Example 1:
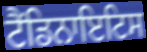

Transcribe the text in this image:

ਟੈਂਡਿਨਾਇਟਿਸ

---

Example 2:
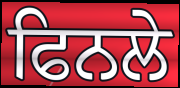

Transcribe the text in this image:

ਫਿਨਲੇ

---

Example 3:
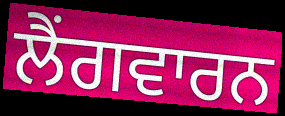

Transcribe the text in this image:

ਲੈਂਗਵਾਰਨ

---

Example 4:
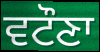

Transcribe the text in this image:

ਵਟੌਣਾ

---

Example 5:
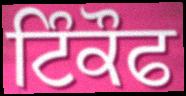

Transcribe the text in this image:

ਟਿੰਕੌਫ